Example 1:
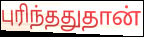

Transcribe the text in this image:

புரிந்ததுதான்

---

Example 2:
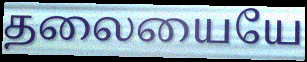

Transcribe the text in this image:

தலையையே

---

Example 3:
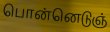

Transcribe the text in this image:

பொன்னெடுஞ்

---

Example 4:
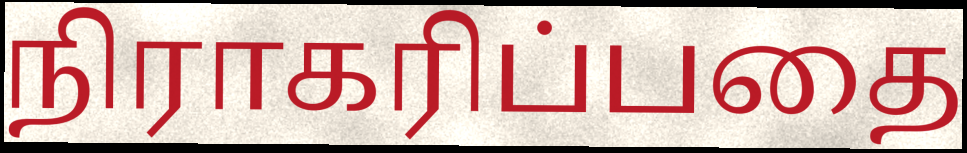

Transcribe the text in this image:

நிராகரிப்பதை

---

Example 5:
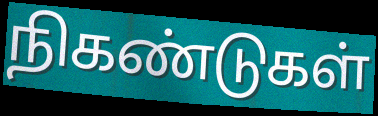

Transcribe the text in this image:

நிகண்டுகள்